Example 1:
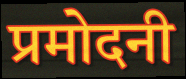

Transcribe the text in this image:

प्रमोदनी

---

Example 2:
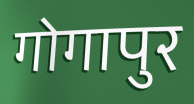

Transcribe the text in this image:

गोगापुर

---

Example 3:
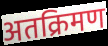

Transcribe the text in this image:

अतक्रिमण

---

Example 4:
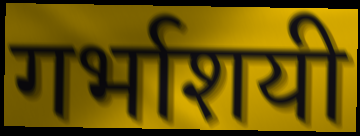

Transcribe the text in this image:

गर्भाशयी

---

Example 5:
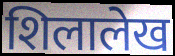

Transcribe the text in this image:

शिलालेख